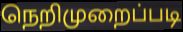
நெறிமுறைப்படி